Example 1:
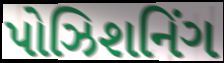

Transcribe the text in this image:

પોઝિશનિંગ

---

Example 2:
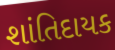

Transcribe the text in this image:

શાંતિદાયક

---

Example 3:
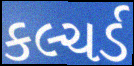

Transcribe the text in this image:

કલ્ચર્ડ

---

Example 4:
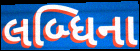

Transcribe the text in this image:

લબ્ધિના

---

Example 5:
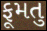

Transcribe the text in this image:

ફૂમતુ